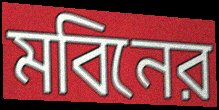
মবিনের